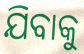
ଯିବାକୁ